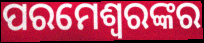
ପରମେଶ୍ଵରଙ୍କର